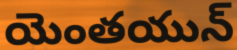
యెంతయున్